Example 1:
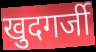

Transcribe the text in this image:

खुदगर्जी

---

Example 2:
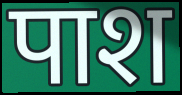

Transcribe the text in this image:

पाश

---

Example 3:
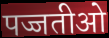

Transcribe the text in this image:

पज्जतीओ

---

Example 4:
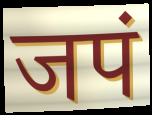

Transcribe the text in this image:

जपं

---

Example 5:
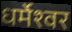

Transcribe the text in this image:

धर्मेश्वर